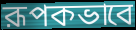
রূপকভাবে